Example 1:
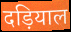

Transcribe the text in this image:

दड़ियाल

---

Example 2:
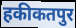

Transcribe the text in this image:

हकीकतपुर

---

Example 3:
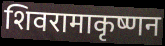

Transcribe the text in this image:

शिवरामाकृष्णन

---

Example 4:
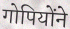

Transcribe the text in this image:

गोपियोंने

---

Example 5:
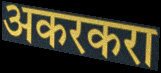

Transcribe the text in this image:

अकरकरा